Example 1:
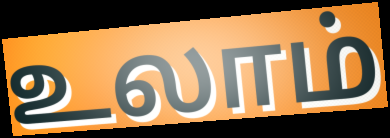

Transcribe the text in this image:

உலாம்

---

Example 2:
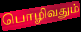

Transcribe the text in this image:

பொழிவதும்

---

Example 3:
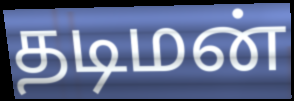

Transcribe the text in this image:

தடிமன்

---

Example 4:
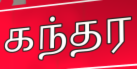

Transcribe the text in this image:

கந்தர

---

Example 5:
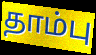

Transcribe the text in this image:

தாம்பு